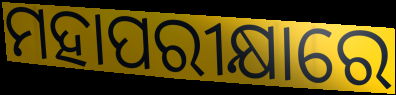
ମହାପରୀକ୍ଷାରେ